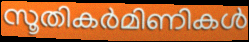
സൂതികർമിണികൾ